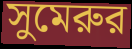
সুমেরুর